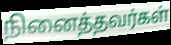
நினைத்தவர்கள்